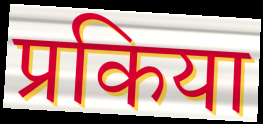
प्रकिया